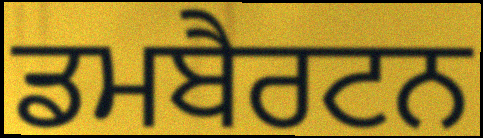
ਡਮਬੈਰਟਨ